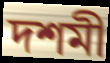
দশমী